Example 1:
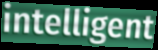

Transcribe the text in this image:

intelligent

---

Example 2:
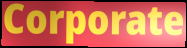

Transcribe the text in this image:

Corporate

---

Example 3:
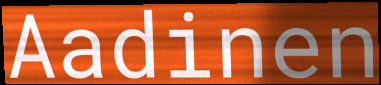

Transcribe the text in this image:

Aadinen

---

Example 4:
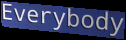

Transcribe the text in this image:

Everybody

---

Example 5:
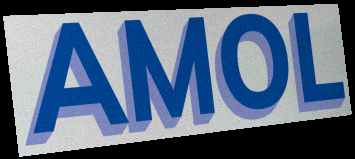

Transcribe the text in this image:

AMOL